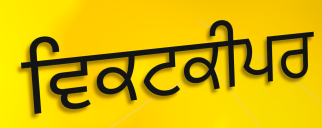
ਵਿਕਟਕੀਪਰ